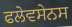
ਫਲੇਵਸੇਨਸ